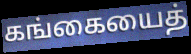
கங்கையைத்